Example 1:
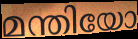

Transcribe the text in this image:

മന്തിയോ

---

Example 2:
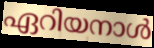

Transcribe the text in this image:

ഏറിയനാൾ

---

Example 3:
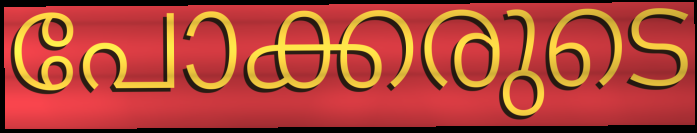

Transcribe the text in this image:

പോക്കരുടെ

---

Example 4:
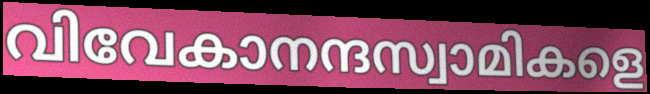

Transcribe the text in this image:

വിവേകാനന്ദസ്വാമികളെ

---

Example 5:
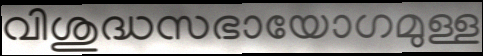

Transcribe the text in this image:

വിശുദ്ധസഭായോഗമുള്ള